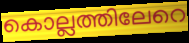
കൊല്ലത്തിലേറെ